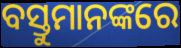
ବସ୍ତୁମାନଙ୍କରେ